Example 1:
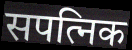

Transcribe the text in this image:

सपत्‍निक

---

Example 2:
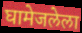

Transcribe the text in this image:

घामेजलेला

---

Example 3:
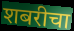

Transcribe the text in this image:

शबरीचा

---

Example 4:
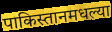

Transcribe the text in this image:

पाकिस्तानमधल्या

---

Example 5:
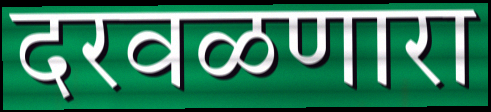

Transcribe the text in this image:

दरवळणारा